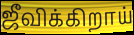
ஜீவிக்கிறாய்